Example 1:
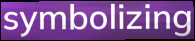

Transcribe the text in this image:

symbolizing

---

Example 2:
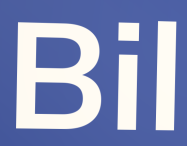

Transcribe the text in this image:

Bil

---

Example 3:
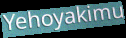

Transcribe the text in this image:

Yehoyakimu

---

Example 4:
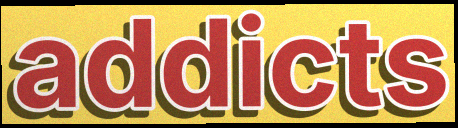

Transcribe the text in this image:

addicts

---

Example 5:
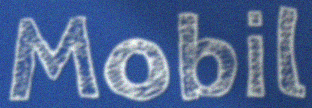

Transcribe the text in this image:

Mobil